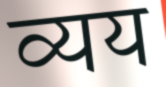
व्यय